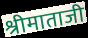
श्रीमाताजी